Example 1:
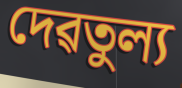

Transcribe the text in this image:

দেৱতুল্য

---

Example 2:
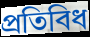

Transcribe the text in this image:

প্ৰতিবিধ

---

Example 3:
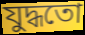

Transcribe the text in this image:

যুদ্ধতো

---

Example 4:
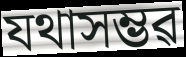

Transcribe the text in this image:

যথাসম্ভৱ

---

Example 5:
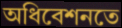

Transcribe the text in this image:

অধিবেশনতে